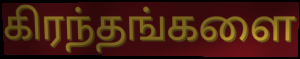
கிரந்தங்களை